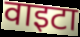
वाइटा